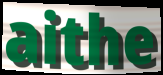
aithe